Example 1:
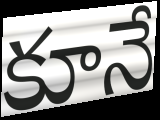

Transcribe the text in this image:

కూనే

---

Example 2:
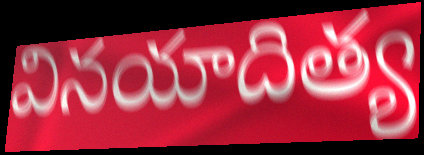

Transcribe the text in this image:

వినయాదిత్య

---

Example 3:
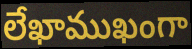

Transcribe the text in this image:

లేఖాముఖంగా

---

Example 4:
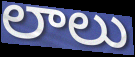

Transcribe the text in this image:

లాలు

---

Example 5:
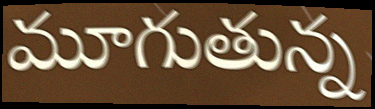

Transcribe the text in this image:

మూగుతున్న